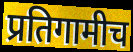
प्रतिगामीच